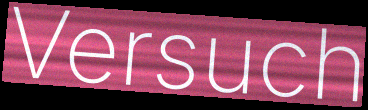
Versuch